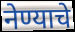
नेण्याचे